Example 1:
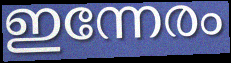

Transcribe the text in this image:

ഇന്നേരം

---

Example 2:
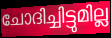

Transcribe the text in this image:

ചോദിച്ചിട്ടുമില്ല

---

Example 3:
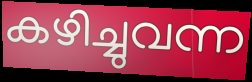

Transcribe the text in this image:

കഴിച്ചുവന്ന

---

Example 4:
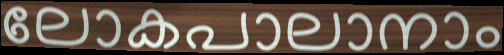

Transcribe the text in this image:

ലോകപാലാനാം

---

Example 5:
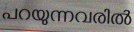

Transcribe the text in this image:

പറയുന്നവരിൽ